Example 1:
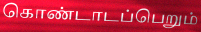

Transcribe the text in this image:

கொண்டாடப்பெறும்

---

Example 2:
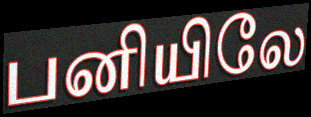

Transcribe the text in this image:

பனியிலே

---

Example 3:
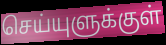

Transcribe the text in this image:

செய்யுளுக்குள்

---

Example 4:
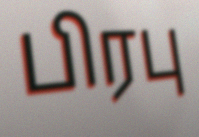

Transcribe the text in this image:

பிரபு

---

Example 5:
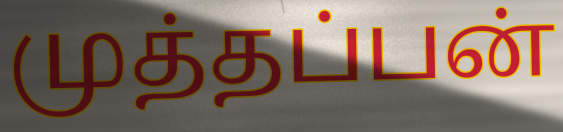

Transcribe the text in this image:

முத்தப்பன்